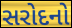
સરોદનો